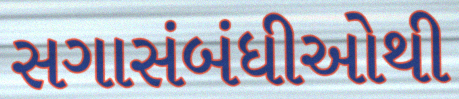
સગાસંબંધીઓથી